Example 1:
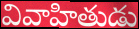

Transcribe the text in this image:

వివాహితుడు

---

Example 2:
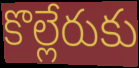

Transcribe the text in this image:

కొల్లేరుకు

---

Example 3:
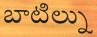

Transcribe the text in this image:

బాటిల్ను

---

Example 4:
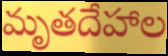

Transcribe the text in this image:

మృతదేహాల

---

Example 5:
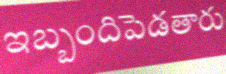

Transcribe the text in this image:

ఇబ్బందిపెడతారు